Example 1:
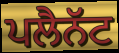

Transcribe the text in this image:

ਪਲੈਨੱਟ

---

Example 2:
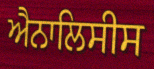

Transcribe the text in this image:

ਐਨਾਲਿਸੀਸ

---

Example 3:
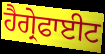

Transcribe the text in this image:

ਹੈਗ੍ਰੇਫਾਈਟ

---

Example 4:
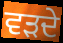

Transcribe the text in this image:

ਵੜਦੇ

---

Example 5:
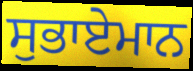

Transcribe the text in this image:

ਸੁਭਾਏਮਾਨ